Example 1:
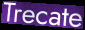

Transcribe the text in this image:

Trecate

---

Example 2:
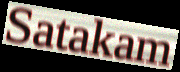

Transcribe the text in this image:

Satakam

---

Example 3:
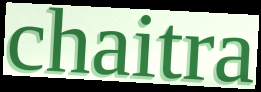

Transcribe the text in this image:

chaitra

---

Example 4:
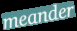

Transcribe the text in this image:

meander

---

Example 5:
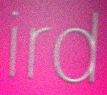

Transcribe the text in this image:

ird